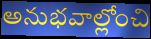
అనుభవాల్లోంచి